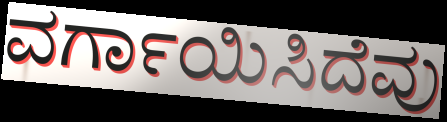
ವರ್ಗಾಯಿಸಿದೆವು